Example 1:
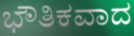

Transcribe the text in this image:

ಭೌತಿಕವಾದ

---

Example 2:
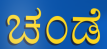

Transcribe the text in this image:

ಚಂಡೆ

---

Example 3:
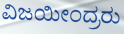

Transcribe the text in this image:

ವಿಜಯೀಂದ್ರರು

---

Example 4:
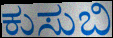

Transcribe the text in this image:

ಕುಸುಬಿ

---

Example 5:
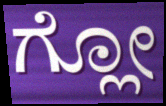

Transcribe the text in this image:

ಗ್ಲೋ